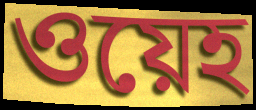
ওয়েহ